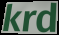
krd